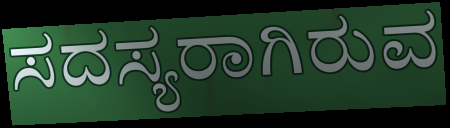
ಸದಸ್ಯರಾಗಿರುವ